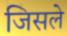
जिसले